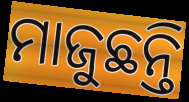
ମାଜୁଛନ୍ତି